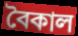
বৈকাল